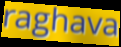
raghava